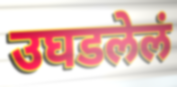
उघडलेलं